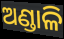
ଅଣ୍ଡାଳି